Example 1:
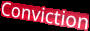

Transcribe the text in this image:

Conviction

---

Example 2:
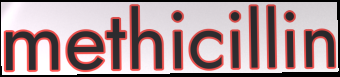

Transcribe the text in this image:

methicillin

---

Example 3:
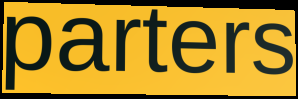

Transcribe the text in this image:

parters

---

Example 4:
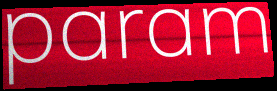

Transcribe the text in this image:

param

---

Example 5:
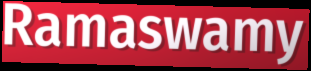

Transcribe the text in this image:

Ramaswamy